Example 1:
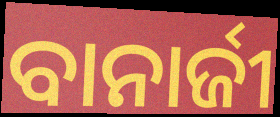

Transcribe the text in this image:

ବାନାର୍ଜୀ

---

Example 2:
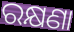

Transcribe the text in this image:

ରକ୍ଷଣା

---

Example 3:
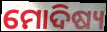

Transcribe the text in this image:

ମୋଦିଷ୍ୟ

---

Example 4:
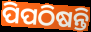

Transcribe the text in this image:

ପିପଠିଷନ୍ତି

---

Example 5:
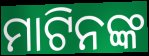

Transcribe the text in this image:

ମାଟିନଙ୍କ